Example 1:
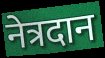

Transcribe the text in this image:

नेत्रदान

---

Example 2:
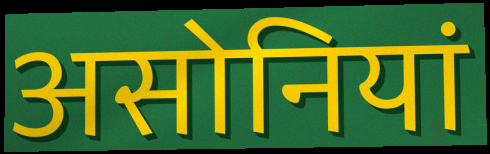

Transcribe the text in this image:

असोनियां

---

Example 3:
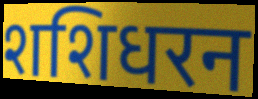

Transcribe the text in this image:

शशिधरन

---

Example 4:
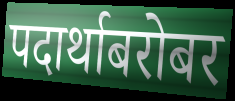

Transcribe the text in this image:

पदार्थाबरोबर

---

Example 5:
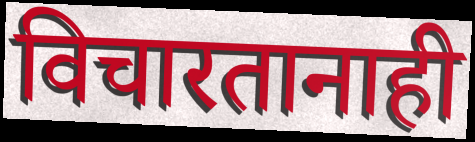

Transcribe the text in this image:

विचारतानाही